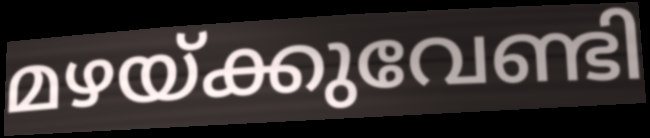
മഴയ്ക്കുവേണ്ടി